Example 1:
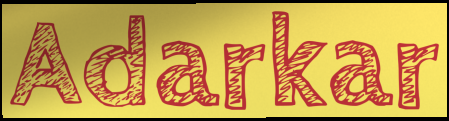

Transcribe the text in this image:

Adarkar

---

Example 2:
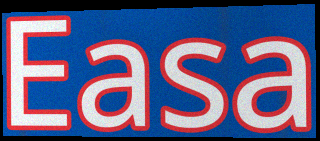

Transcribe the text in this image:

Easa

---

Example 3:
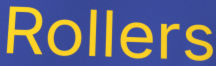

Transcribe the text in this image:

Rollers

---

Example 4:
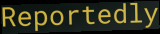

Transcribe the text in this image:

Reportedly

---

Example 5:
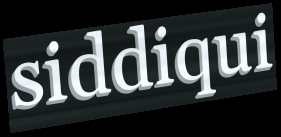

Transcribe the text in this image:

siddiqui